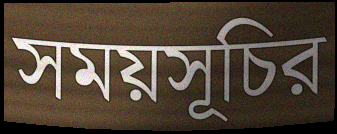
সময়সূচির